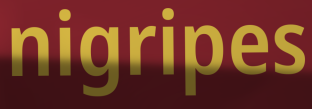
nigripes